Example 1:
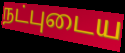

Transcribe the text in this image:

நட்புடைய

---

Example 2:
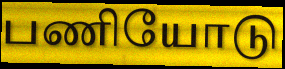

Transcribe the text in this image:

பணியோடு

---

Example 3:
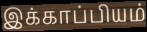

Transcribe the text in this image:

இக்காப்பியம்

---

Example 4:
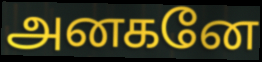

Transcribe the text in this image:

அனகனே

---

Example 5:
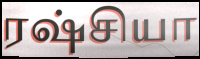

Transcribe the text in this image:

ரஷ்சியா